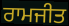
ਰਾਮਜੀਤ